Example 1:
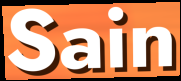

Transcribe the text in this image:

Sain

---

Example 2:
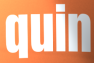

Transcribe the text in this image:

quin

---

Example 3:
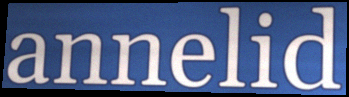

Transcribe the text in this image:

annelid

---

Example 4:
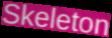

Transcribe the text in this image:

Skeleton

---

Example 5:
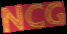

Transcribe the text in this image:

NCG